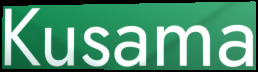
Kusama